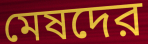
মেষদের